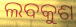
ଲବକୁଶ